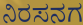
ನಿರಸನಗ